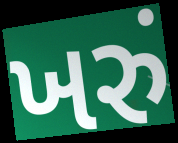
ખરું